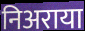
निअराया